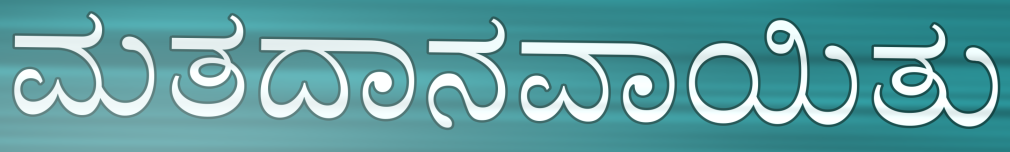
ಮತದಾನವಾಯಿತು